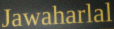
Jawaharlal